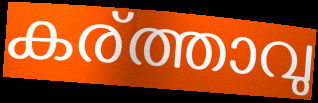
കര്ത്താവു